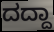
ದದ್ದಾ